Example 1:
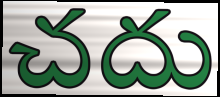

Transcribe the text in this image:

చదు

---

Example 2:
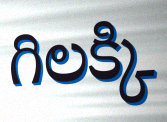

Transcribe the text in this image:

గిలక్కి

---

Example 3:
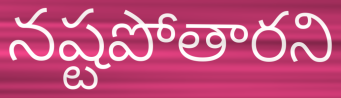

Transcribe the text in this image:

నష్టపోతారని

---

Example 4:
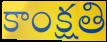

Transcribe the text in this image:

కాంక్షతి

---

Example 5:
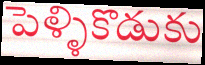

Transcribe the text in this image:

పెళ్ళికొడుకు